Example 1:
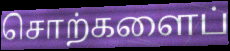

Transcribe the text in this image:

சொற்களைப்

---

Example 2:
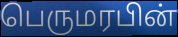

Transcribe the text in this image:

பெருமரபின்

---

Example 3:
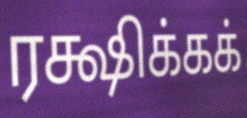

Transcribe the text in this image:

ரக்ஷிக்கக்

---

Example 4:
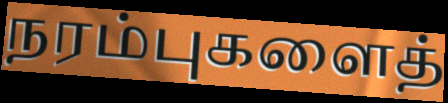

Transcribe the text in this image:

நரம்புகளைத்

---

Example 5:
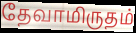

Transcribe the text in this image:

தேவாமிருதம்